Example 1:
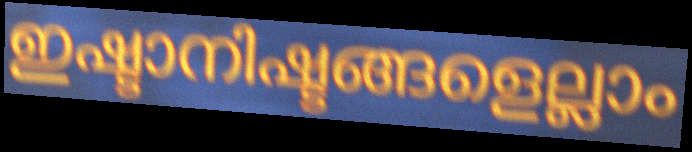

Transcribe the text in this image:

ഇഷ്ടാനിഷ്ടങ്ങളെല്ലാം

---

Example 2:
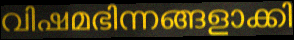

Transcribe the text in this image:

വിഷമഭിന്നങ്ങളാക്കി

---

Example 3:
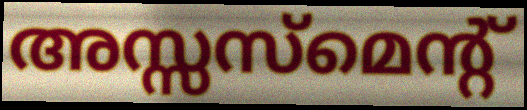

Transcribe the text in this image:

അസ്സസ്മെന്റ്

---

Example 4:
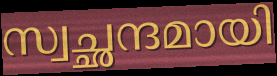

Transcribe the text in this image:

സ്വച്ഛന്ദമായി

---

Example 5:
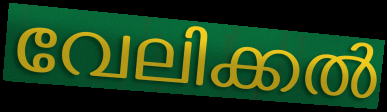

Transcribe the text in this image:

വേലിക്കൽ